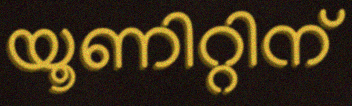
യൂണിറ്റിന്